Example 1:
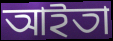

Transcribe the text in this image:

আইতা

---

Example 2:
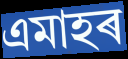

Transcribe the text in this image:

এমাহৰ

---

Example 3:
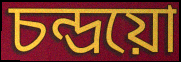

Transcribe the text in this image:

চন্দ্ৰয়ো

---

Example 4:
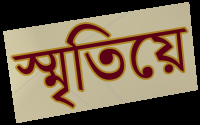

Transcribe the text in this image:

স্মৃতিয়ে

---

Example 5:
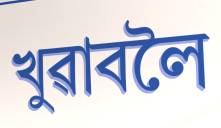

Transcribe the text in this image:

খুৱাবলৈ